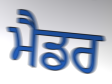
ਮੈਡਰ